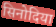
सिनोदिया